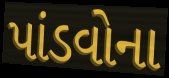
પાંડવોના